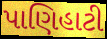
પાણિહાટી